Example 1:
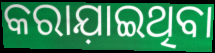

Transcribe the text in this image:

କରାଯ଼ାଇଥିବା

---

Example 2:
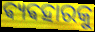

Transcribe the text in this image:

ଵ୍ୟଵହାରକୁ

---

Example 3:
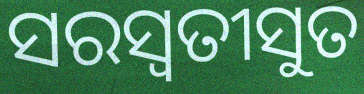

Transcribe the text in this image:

ସରସ୍ୱତୀସୁତ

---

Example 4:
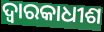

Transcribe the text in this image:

ଦ୍ୱାରକାଧୀଶ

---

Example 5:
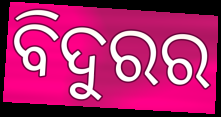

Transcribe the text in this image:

ବିଦୁରର